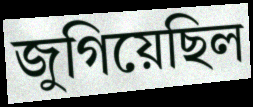
জুগিয়েছিল